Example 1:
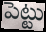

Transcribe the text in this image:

పెట్టు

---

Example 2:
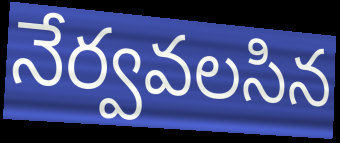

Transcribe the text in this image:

నేర్వవలసిన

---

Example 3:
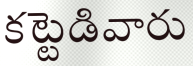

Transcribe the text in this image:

కట్టెడివారు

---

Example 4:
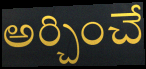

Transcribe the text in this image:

అర్చించే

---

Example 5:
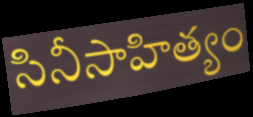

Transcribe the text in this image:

సినీసాహిత్యం